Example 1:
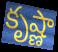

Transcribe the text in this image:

కృష్ణా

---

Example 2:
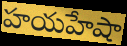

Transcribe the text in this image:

హయహేషా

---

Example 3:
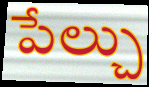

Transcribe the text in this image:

పేల్చు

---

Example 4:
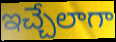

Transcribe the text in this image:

ఇచ్చేలాగా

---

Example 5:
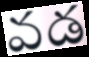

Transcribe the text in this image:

వడ